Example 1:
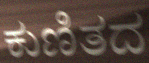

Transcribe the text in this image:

ಕುಣಿತದ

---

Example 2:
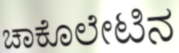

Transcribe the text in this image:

ಚಾಕೊಲೇಟಿನ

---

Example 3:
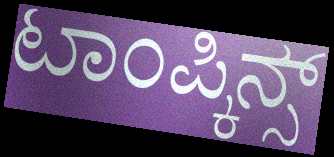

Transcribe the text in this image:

ಟಾಂಪ್ಕಿನ್ಸ್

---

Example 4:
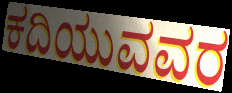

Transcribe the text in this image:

ಕದಿಯುವವರ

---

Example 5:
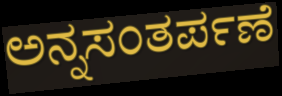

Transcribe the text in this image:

ಅನ್ನಸಂತರ್ಪಣೆ